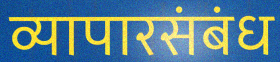
व्यापारसंबंध